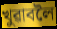
খুৱাবলৈ